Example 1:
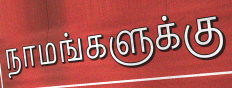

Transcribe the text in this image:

நாமங்களுக்கு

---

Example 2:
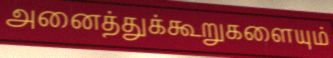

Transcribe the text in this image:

அனைத்துக்கூறுகளையும்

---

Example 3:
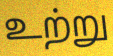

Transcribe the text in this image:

உற்று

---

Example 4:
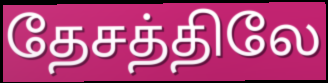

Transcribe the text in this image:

தேசத்திலே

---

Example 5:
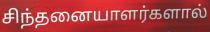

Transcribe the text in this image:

சிந்தனையாளர்களால்